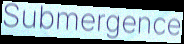
Submergence